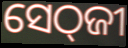
ସେଠ୍‌ଜୀ